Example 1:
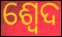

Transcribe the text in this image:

ଶ୍ଵେଦ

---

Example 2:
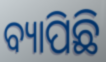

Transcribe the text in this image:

ବ୍ୟାପିଛି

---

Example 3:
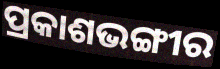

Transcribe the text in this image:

ପ୍ରକାଶଭଙ୍ଗୀର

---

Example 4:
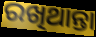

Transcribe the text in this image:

ରଖିଥାନ୍ତା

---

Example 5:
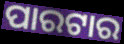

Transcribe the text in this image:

ପାରଟାର